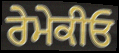
ਰੇਮੇਕੀਓ